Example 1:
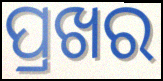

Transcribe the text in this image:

ପ୍ରଖର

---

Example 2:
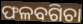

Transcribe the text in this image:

ଫଳବଗିଚା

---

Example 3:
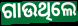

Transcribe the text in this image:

ଗାଉଥିଲେ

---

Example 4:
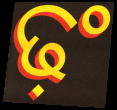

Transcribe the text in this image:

ଢ଼ଂ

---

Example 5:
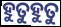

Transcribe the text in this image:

ହୁତୁହୁତୁ